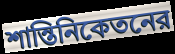
শান্তিনিকেতনের